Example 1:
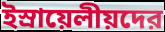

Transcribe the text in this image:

ইস্রায়েলীয়দের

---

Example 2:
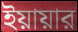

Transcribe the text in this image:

ইয়ায়ার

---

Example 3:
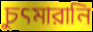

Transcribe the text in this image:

চুৎমারানি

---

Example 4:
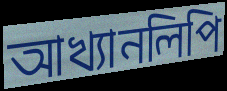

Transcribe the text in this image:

আখ্যানলিপি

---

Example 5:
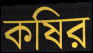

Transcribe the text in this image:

কষির